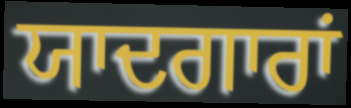
ਯਾਦਗਾਰਾਂ